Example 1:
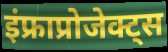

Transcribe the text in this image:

इंफ्राप्रोजेक्ट्स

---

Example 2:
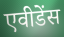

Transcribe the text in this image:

एवीडेंस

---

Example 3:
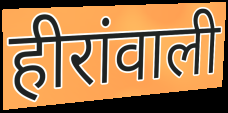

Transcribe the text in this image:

हीरांवाली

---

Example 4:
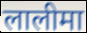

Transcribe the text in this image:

लालीमा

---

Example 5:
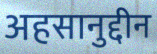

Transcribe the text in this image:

अहसानुद्दीन